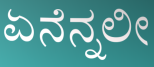
ಏನೆನ್ನಲೀ